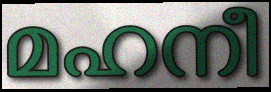
മഹനീ